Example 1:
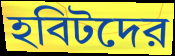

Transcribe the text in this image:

হবিটদের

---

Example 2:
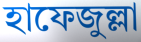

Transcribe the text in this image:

হাফেজুল্লা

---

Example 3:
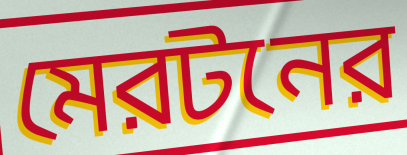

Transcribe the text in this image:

মেরটনের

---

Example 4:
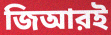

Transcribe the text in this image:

জিআরই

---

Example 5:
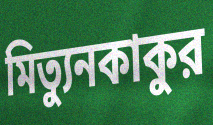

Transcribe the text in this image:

মিত্যুনকাকুর